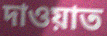
দাওয়াত